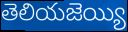
తెలియజెయ్యి